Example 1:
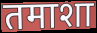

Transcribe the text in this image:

तमाशा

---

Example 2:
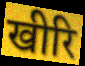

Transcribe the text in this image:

खीरि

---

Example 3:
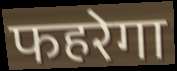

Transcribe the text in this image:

फहरेगा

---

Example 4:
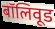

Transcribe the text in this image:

बॉलिवूड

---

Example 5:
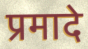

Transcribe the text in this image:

प्रमादे